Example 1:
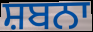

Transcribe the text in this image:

ਸ਼ਬਨਾ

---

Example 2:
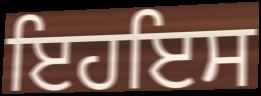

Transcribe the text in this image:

ਇਹਇਸ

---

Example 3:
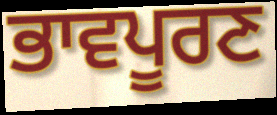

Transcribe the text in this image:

ਭਾਵਪੂਰਣ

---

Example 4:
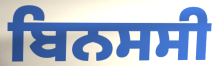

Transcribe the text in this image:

ਬਿਨਸਸੀ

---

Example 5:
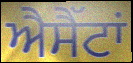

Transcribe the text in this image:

ਐਸੈੱਟਾਂ